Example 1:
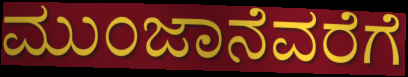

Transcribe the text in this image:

ಮುಂಜಾನೆವರೆಗೆ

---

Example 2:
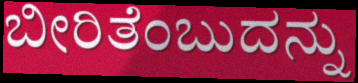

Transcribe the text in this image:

ಬೀರಿತೆಂಬುದನ್ನು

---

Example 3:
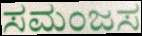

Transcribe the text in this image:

ಸಮಂಜಸ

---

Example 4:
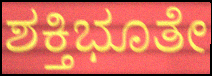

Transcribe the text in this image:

ಶಕ್ತಿಭೂತೇ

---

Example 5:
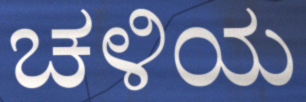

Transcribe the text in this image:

ಚಳಿಯ